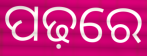
ପଢ଼ରେ